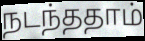
நடந்ததாம்